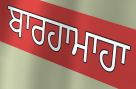
ਬਾਰਹਾਮਾਹਾ